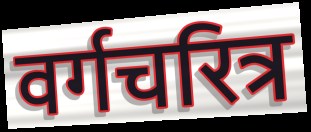
वर्गचरित्र